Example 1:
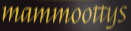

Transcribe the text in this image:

mammoottys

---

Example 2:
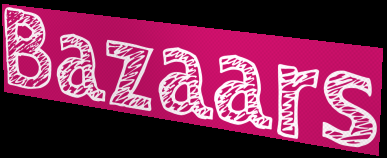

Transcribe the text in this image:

Bazaars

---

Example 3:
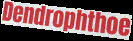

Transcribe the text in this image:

Dendrophthoe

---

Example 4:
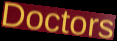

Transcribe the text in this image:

Doctors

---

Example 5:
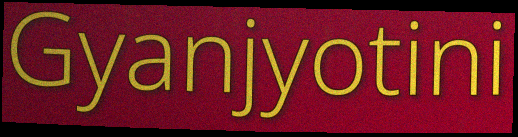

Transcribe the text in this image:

Gyanjyotini